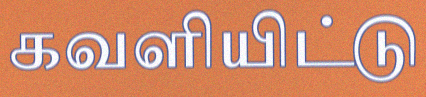
கவளியிட்டு